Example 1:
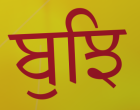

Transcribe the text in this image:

ਬੁਝਿ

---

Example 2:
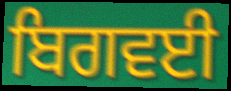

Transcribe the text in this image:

ਬਿਗਵਈ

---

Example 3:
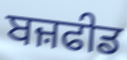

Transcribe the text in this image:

ਬਜ਼ਫੀਡ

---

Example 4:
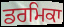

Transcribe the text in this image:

ਡਰਮਿਕਾ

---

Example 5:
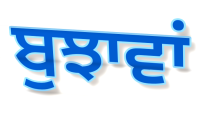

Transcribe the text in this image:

ਬੁਝਾਵਾਂ